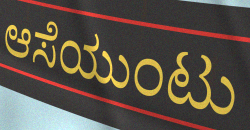
ಆಸೆಯುಂಟು